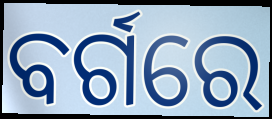
ବର୍ଗରେ